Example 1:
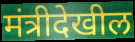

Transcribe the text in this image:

मंत्रीदेखील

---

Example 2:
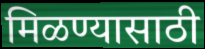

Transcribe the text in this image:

मिळण्‍यासाठी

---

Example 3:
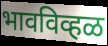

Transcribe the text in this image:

भावविव्हळ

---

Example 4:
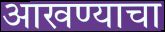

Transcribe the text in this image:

आखण्याचा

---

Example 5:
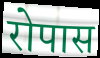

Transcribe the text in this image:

रोपास